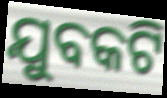
ଯୁବକଟି